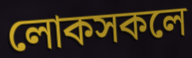
লোকসকলে